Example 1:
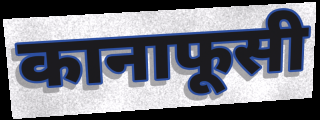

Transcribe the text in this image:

कानाफूसी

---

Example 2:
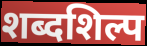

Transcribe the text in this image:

शब्दशिल्प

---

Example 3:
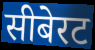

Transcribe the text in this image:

सीबेरट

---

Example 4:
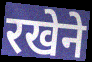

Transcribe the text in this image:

रखेने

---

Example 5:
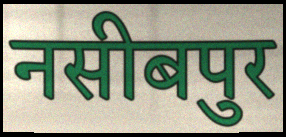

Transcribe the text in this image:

नसीबपुर